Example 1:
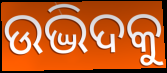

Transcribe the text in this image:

ଉଦ୍ଭିଦକୁ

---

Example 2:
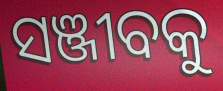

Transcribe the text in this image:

ସଞ୍ଜୀବକୁ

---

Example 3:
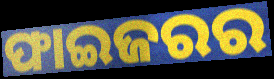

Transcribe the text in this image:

ଫାଇଜରର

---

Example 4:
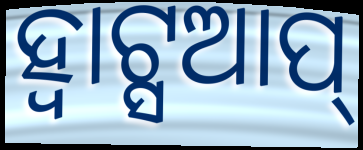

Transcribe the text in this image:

ହ୍ବାଟ୍ସଆପ୍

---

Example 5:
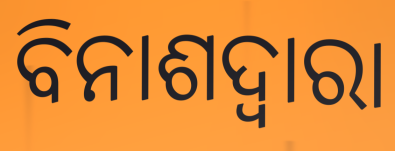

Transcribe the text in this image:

ବିନାଶଦ୍ଵାରା